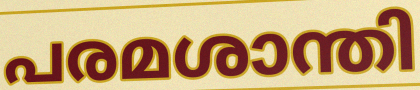
പരമശാന്തി